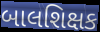
બાલશિક્ષક